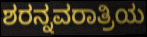
ಶರನ್ನವರಾತ್ರಿಯ